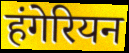
हंगेरियन